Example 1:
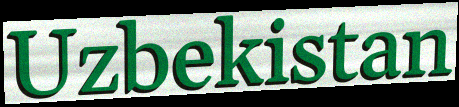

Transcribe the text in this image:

Uzbekistan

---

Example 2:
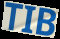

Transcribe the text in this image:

TIB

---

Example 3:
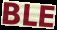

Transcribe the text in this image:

BLE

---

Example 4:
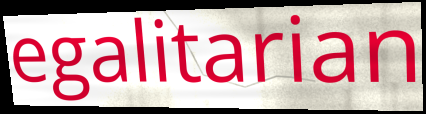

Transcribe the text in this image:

egalitarian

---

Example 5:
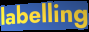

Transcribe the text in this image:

labelling